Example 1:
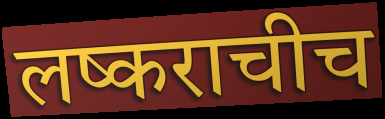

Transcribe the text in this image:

लष्कराचीच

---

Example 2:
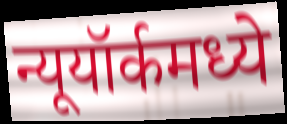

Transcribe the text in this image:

न्यूयॉर्कमध्ये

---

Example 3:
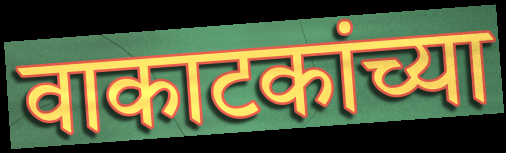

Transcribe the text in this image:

वाकाटकांच्या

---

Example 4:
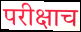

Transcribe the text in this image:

परीक्षाच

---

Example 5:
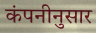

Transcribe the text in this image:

कंपनीनुसार